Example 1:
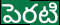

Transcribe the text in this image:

పెరటి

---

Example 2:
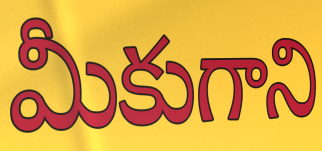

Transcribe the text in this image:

మీకుగాని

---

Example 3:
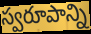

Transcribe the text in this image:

స్వరూపాన్ని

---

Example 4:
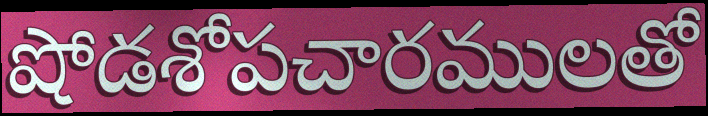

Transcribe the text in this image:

షోడశోపచారములతో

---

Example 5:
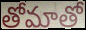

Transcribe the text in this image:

తోమాతో